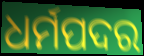
ଧର୍ମପଦର